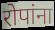
रोपांना